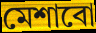
মেশাবো